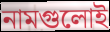
নামগুলোই